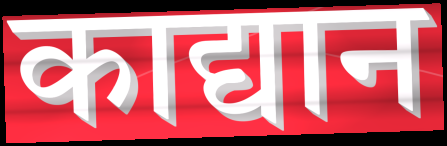
काद्यान